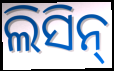
ଲିସିନ୍